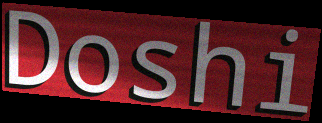
Doshi